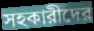
সহকারীদের